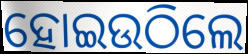
ହୋଇଉଠିଲେ